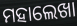
ମହାଲେଖା